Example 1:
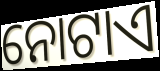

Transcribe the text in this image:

ନୋଟାଏ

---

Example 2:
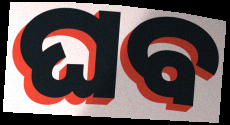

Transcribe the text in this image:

ଘବ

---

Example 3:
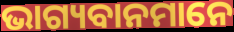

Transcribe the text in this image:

ଭାଗ୍ୟବାନମାନେ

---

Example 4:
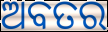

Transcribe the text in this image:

ଅବତର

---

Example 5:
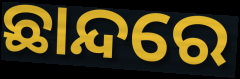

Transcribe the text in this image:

ଛାନ୍ଦରେ